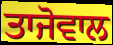
ਤਾਜੋਵਾਲ